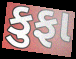
કુફા